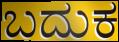
ಬದುಕ